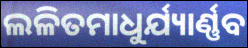
ଲଳିତମାଧୁର୍ଯ୍ୟାର୍ଣ୍ଣବ